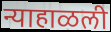
न्याहाळली